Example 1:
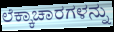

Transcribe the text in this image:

ಲೆಕ್ಕಾಚಾರಗಳನ್ನು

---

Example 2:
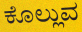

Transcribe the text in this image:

ಕೊಲ್ಲುವ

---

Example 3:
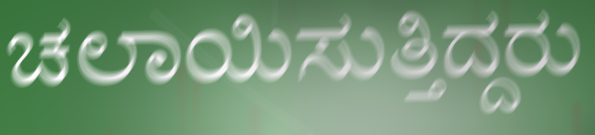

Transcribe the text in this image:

ಚಲಾಯಿಸುತ್ತಿದ್ದರು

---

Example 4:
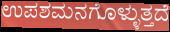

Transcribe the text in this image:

ಉಪಶಮನಗೊಳ್ಳುತ್ತದೆ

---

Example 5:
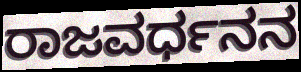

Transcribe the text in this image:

ರಾಜವರ್ಧನನ